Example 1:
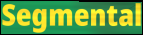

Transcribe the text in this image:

Segmental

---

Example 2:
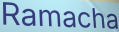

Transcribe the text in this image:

Ramacha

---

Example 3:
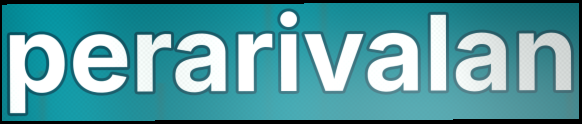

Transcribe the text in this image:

perarivalan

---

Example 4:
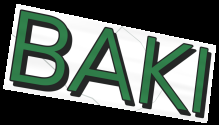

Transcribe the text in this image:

BAKI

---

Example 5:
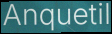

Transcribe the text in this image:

Anquetil